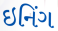
ઇનિંગ